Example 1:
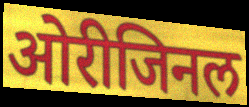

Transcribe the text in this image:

ओरीजिनल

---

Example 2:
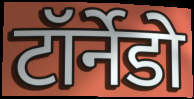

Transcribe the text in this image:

टॉर्नेडो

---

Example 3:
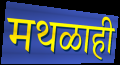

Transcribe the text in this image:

मथळाही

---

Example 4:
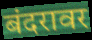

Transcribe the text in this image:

बंदरावर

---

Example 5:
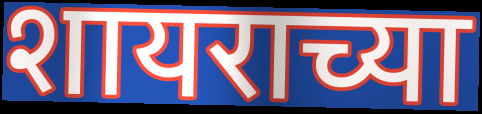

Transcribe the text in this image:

शायराच्या